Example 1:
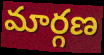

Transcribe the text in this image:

మార్గణ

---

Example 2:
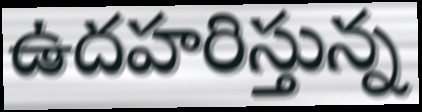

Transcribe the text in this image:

ఉదహరిస్తున్న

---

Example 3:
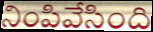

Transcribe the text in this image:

నింపివేసింది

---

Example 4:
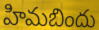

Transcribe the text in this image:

హిమబిందు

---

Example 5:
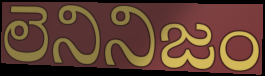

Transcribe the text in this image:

లెనినిజం